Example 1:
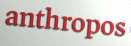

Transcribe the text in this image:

anthropos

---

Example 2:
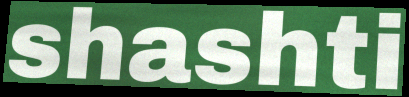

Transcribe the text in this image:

shashti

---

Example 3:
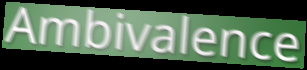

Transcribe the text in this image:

Ambivalence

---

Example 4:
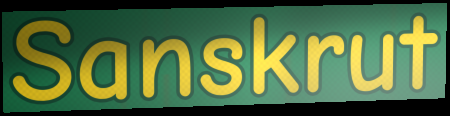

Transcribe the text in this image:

Sanskrut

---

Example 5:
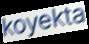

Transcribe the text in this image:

koyekta